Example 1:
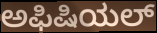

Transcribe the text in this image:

ಅಫಿಷಿಯಲ್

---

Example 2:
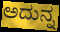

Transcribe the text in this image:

ಅದುನ್ನ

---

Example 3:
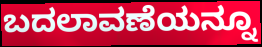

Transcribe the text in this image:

ಬದಲಾವಣೆಯನ್ನೂ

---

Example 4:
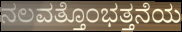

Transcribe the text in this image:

ನಲವತ್ತೊಂಭತ್ತನೆಯ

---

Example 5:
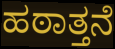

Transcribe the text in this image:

ಹಠಾತ್ತನೆ